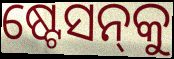
ଷ୍ଟେସନ୍‍କୁ